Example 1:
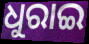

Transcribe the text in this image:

ଧୁରାଇ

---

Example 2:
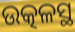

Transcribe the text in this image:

ଉତ୍କଳସ୍ଥ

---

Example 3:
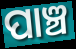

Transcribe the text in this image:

ପାଞ୍ଚ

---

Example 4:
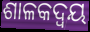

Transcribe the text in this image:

ଶାଳକଦ୍ୱୟ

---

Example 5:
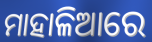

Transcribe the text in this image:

ମାହାଳିଆରେ